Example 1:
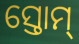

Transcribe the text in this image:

ସ୍ତୋମ୍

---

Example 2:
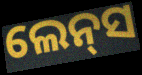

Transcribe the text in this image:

ଲେନ୍‍ସ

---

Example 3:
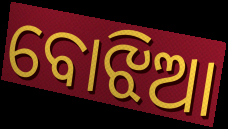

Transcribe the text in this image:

ବୋଝିଆ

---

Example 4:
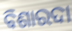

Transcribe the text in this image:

ବିଶାରଦା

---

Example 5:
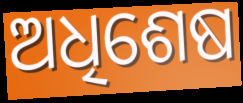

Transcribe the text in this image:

ଅଧିଶେଷ